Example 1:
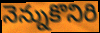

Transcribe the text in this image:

నెన్నుకొనిరి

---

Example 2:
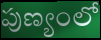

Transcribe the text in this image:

పుణ్యంలో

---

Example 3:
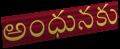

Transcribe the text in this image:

అంధునకు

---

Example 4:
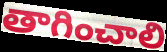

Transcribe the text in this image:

తాగించాలి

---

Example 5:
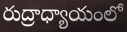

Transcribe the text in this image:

రుద్రాధ్యాయంలో